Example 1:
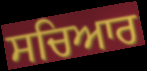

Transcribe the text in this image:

ਸਚਿਆਰ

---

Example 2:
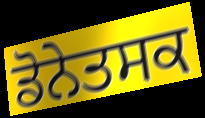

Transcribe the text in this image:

ਡੋਨੇਤਸਕ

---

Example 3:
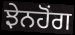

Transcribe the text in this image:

ਝੇਨਹੋਂਗ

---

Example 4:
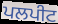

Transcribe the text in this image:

ਪਲਪੀਟ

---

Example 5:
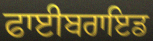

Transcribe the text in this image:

ਫਾਈਬਰਾਇਡ